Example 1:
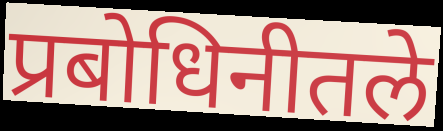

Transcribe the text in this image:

प्रबोधिनीतले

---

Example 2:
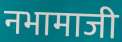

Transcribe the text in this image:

नभामाजी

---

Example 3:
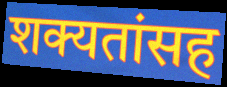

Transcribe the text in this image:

शक्यतांसह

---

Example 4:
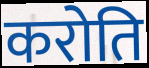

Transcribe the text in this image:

करोति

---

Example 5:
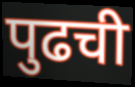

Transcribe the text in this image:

पुढची